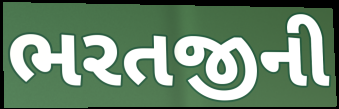
ભરતજીની